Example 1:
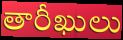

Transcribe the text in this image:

తారీఖులు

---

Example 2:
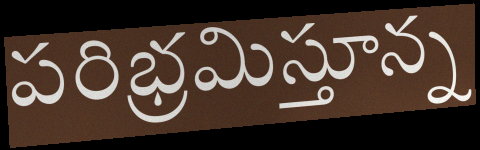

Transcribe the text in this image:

పరిభ్రమిస్తూన్న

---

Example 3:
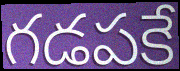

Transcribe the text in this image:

గడపకే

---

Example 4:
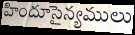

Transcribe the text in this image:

హిందూసైన్యములు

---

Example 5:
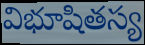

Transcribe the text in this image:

విభూషితస్య